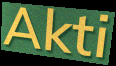
Akti